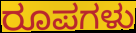
ರೂಪಗಳು